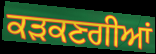
ਕੜਕਣਗੀਆਂ